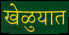
खेळुयात